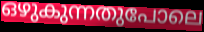
ഒഴുകുന്നതുപോലെ